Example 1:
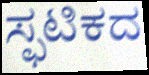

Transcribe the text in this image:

ಸ್ಫಟಿಕದ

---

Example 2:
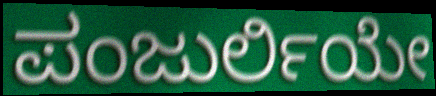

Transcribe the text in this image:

ಪಂಜುರ್ಲಿಯೇ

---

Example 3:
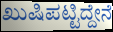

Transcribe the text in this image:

ಖುಷಿಪಟ್ಟಿದ್ದೇನೆ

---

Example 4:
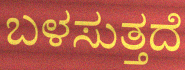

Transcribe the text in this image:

ಬಳಸುತ್ತದೆ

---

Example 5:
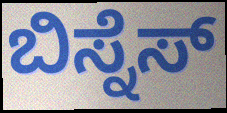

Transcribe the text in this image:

ಬಿಸ್ನೆಸ್